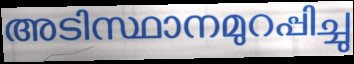
അടിസ്ഥാനമുറപ്പിച്ചു